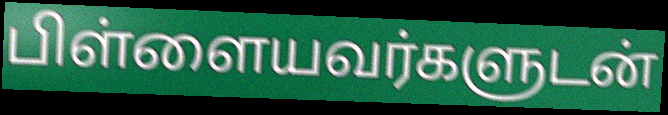
பிள்ளையவர்களுடன்